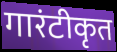
गारंटीकृत